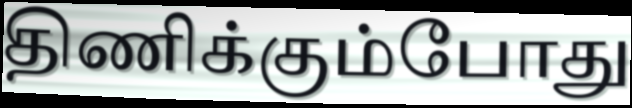
திணிக்கும்போது